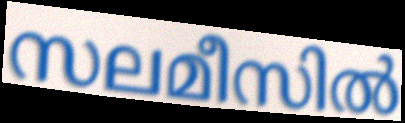
സലമീസിൽ